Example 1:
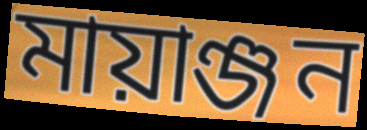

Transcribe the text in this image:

মায়াঞ্জন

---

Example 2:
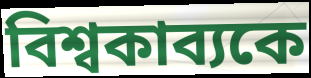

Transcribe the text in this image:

বিশ্বকাব্যকে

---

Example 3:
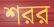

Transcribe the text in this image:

শরর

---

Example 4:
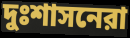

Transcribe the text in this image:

দুঃশাসনেরা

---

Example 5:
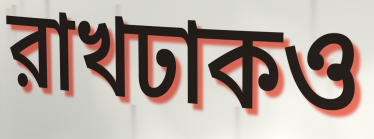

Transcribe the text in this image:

রাখঢাকও